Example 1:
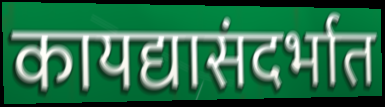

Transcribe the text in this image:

कायद्यासंदर्भात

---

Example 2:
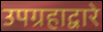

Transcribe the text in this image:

उपग्रहाद्वारे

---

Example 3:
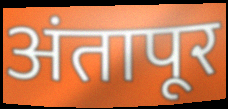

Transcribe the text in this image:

अंतापूर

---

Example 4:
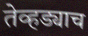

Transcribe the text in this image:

तेव्हड्याच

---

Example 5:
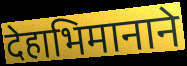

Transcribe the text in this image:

देहाभिमानाने